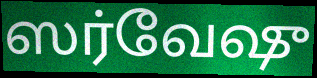
ஸர்வேஷு